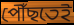
পৌঁছতেই